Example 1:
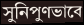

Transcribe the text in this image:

সুনিপুণভাবে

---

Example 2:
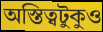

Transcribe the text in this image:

অস্তিত্বটুকুও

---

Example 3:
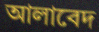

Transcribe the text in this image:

আলাবেদ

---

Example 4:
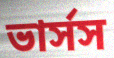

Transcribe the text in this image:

ভার্সস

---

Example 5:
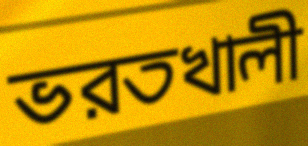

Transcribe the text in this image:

ভরতখালী